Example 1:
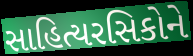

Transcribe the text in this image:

સાહિત્યરસિકોને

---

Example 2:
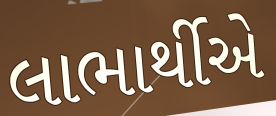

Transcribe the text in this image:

લાભાર્થીએ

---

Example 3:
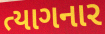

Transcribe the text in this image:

ત્યાગનાર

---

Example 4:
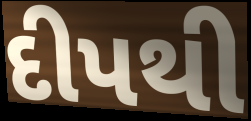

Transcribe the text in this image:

દીપથી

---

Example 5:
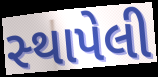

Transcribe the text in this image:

સ્‍થાપેલી